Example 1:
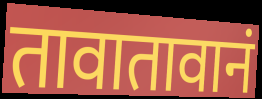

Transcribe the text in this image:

तावातावानं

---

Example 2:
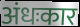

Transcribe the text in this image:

अंधःकार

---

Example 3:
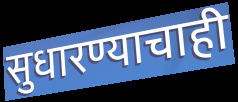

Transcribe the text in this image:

सुधारण्याचाही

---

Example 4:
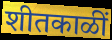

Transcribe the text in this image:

शीतकाळीं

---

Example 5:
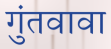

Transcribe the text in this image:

गुंतवावा